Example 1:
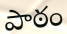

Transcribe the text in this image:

పాఠం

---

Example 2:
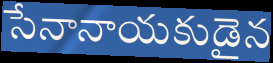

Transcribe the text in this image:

సేనానాయకుడైన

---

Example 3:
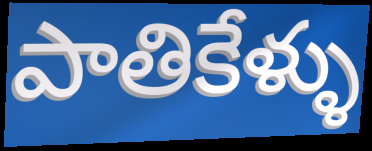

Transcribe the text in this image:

పాతికేళ్ళు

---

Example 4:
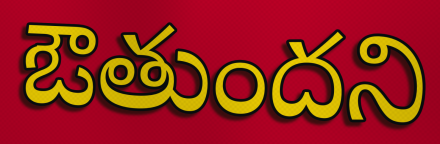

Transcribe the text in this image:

ఔతుందని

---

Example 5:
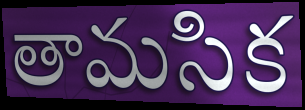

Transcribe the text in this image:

తామసిక